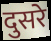
दुसरे